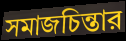
সমাজচিন্তার